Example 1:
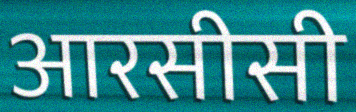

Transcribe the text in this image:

आरसीसी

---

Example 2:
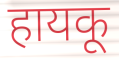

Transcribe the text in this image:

हायकू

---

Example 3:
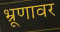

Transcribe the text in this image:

भ्रूणावर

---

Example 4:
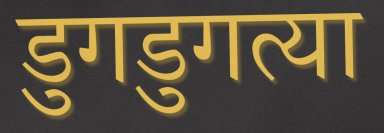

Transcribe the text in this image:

डुगडुगत्या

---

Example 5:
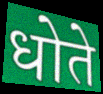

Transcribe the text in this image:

धोते